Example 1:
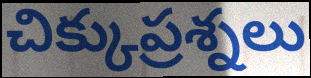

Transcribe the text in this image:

చిక్కుప్రశ్నలు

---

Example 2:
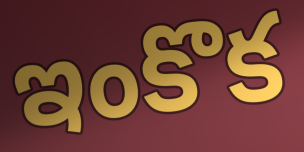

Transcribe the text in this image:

ఇంకొక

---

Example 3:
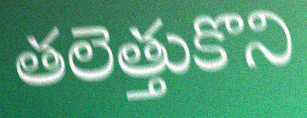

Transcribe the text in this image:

తలెత్తుకొని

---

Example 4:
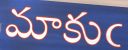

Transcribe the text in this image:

మాకుఁ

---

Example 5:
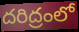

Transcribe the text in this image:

దరిద్రంలో